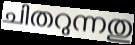
ചിതറുന്നതു